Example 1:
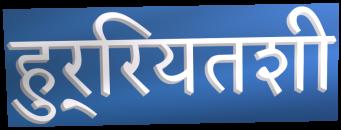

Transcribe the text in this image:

हुर्रियतशी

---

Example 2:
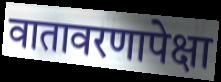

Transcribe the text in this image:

वातावरणापेक्षा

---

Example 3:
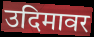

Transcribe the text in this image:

उदिमावर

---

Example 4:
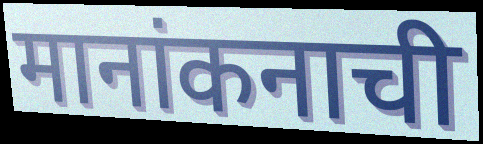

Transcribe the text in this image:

मानांकनाची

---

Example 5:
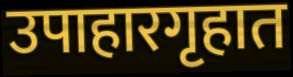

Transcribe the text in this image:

उपाहारगृहात